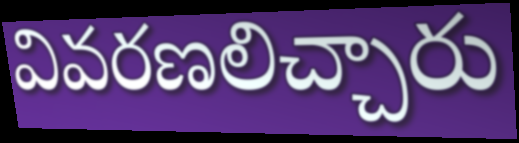
వివరణలిచ్చారు